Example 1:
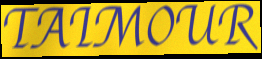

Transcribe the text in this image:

TAIMOUR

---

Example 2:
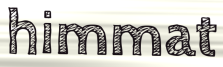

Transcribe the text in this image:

himmat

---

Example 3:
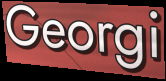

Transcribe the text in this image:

Georgi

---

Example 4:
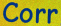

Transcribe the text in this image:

Corr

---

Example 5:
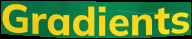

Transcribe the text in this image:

Gradients